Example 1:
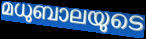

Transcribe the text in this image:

മധുബാലയുടെ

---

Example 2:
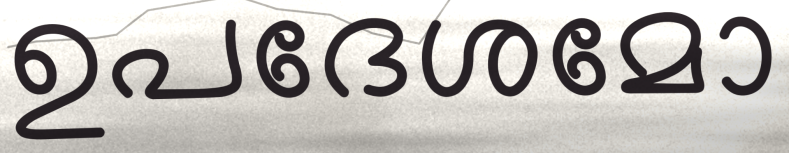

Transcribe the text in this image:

ഉപദേശമോ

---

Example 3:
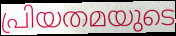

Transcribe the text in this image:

പ്രിയതമയുടെ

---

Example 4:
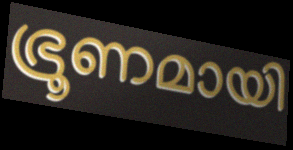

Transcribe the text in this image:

ഭ്രൂണമായി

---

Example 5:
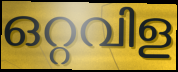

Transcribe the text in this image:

ഒറ്റവിള